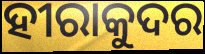
ହୀରାକୁଦର